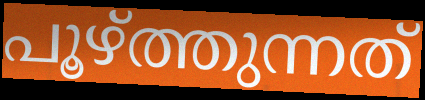
പൂഴ്ത്തുന്നത്